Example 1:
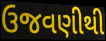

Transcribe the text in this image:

ઉજવણીથી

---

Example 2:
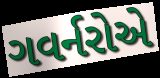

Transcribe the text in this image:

ગવર્નરોએ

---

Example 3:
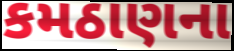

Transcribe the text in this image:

કમઠાણના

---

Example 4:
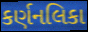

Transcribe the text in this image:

કર્ણનલિકા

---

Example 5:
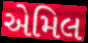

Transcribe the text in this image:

એમિલ